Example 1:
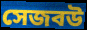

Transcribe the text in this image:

সেজবউ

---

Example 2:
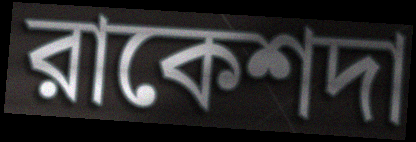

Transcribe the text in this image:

রাকেশদা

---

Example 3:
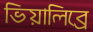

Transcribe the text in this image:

ভিয়ালিব্রে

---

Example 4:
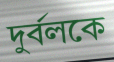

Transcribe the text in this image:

দুর্বলকে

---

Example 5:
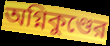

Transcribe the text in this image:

অগ্নিকুণ্ডের